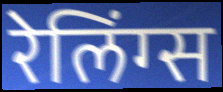
रेलिंग्स